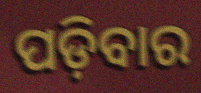
ପଡ଼ିବାର